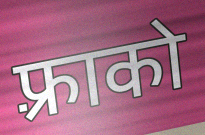
फ़्राको